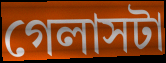
গেলাসটা